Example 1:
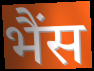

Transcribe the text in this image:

भैंस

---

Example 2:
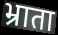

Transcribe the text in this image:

भ्राता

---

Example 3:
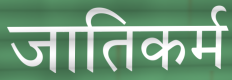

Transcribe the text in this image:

जातिकर्म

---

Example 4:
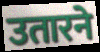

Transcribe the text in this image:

उतारने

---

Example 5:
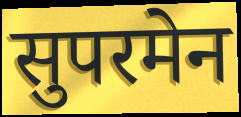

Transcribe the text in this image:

सुपरमेन